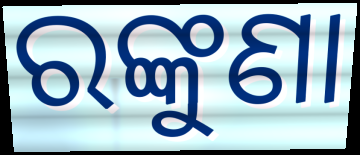
ରଙ୍କୁଣା